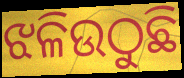
ଝଳିଉଠୁଛି